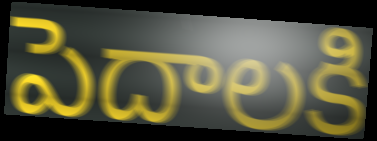
పెదాలకి